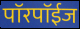
पॉरपॉईज